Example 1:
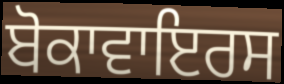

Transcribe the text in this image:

ਬੋਕਾਵਾਇਰਸ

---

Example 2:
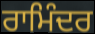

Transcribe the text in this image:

ਰਾਮਿੰਦਰ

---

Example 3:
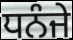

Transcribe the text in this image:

ਧਨੰਜੇ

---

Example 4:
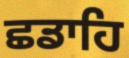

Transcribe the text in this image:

ਛਡਾਹਿ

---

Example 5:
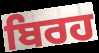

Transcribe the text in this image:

ਬਿਰਹ